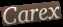
Carex